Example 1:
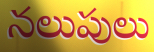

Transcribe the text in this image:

నలుపులు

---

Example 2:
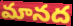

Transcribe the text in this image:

మానద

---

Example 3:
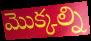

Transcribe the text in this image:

మొక్కల్ని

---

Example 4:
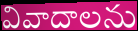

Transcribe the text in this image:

వివాదాలను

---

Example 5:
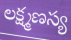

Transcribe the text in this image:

లక్ష్మణస్య